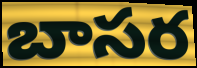
బాసర